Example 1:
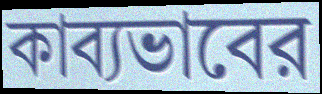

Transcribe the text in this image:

কাব্যভাবের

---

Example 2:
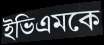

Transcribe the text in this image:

ইভিএমকে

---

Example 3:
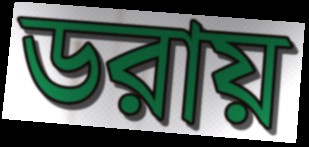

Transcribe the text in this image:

ডরায়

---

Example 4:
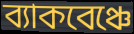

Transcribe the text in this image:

ব্যাকবেঞ্চে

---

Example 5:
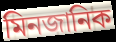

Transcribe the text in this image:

মিনজানিক